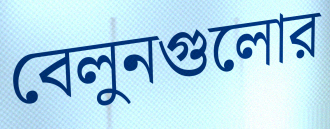
বেলুনগুলোর